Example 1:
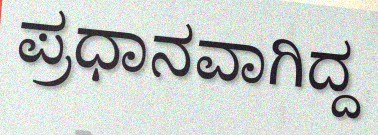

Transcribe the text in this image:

ಪ್ರಧಾನವಾಗಿದ್ದ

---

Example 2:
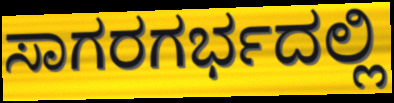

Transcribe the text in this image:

ಸಾಗರಗರ್ಭದಲ್ಲಿ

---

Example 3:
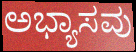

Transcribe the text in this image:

ಅಭ್ಯಾಸವು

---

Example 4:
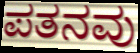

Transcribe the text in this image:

ಪತನವು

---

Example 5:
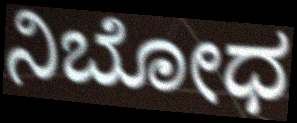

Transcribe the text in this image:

ನಿಬೋಧ